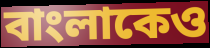
বাংলাকেও